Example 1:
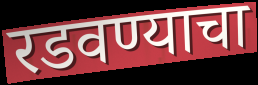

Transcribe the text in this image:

रडवण्याचा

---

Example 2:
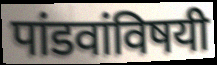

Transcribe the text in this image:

पांडवांविषयी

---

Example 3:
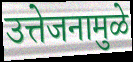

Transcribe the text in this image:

उत्तेजनामुळे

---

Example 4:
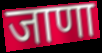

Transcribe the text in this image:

जाणा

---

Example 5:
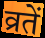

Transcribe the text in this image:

व्रतें